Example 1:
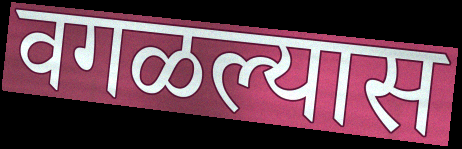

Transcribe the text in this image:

वगळल्यास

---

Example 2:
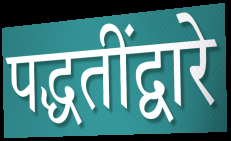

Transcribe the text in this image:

पद्धतींद्वारे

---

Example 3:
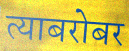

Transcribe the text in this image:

त्याबरोबर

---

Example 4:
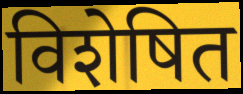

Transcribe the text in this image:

विशेषित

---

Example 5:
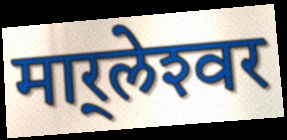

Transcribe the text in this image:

मार्लेश्वर